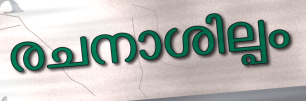
രചനാശില്പം